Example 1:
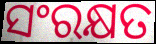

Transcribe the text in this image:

ସଂରକ୍ଷତ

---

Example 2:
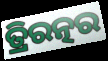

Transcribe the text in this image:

ତ୍ରିରତ୍ନର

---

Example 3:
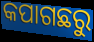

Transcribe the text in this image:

କପାଗଛରୁ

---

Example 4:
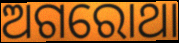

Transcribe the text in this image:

ଅଗରୋଥା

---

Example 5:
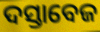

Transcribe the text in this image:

ଦସ୍ତାବେଜ